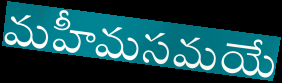
మహీమసమయే